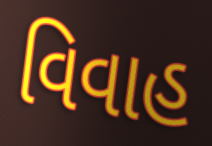
વિવાહ